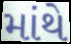
માંથે